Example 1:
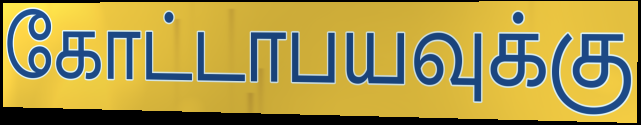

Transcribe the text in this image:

கோட்டாபயவுக்கு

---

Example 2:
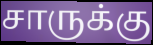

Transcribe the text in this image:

சாருக்கு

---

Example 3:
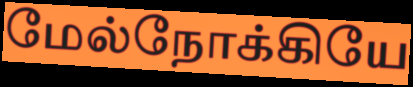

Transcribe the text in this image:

மேல்நோக்கியே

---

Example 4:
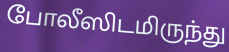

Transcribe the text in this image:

போலீஸிடமிருந்து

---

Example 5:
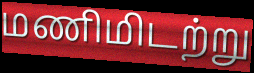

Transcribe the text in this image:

மணிமிடற்று